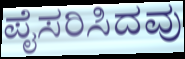
ಪೈಸರಿಸಿದವು